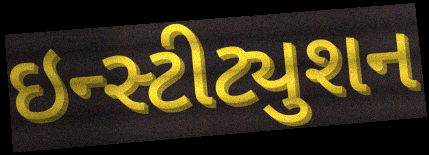
ઇન્સ્ટીટ્યુશન